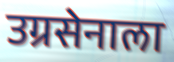
उग्रसेनाला